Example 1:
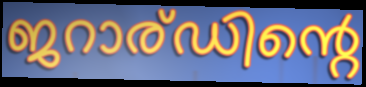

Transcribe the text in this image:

ജറാര്ഡിന്റെ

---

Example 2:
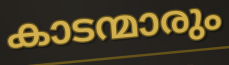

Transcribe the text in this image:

കാടന്മാരും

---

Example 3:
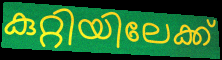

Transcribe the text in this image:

കുറ്റിയിലേക്ക്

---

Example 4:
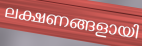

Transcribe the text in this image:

ലക്ഷണങ്ങളായി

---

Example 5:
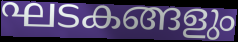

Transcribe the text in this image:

ഘടകങ്ങളും